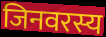
जिनवरस्य